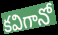
కవిగానో